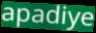
apadiye